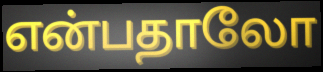
என்பதாலோ